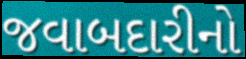
જવાબદારીનો